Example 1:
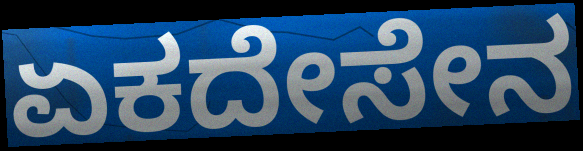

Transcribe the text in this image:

ಏಕದೇಸೇನ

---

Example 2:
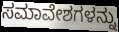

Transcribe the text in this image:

ಸಮಾವೇಶಗಳನ್ನು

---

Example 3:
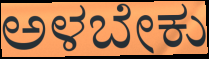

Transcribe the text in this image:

ಅಳಬೇಕು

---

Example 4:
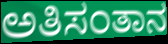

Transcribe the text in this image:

ಅತಿಸಂತಾನ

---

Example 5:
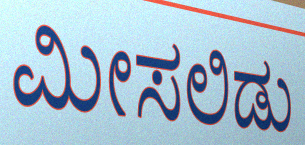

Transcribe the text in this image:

ಮೀಸಲಿಡು